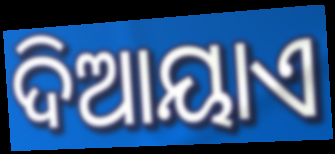
ଦିଆୟାଏ